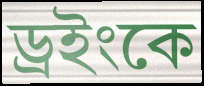
ড্রইংকে